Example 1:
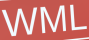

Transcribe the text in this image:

WML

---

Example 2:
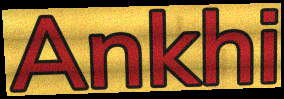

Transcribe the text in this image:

Ankhi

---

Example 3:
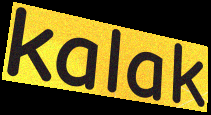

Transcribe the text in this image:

kalak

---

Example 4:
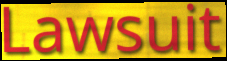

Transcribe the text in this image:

Lawsuit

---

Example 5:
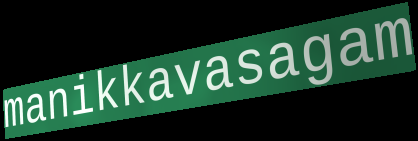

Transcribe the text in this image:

manikkavasagam